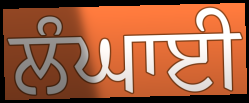
ਲੰਘਾਈ